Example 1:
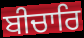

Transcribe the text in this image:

ਬੀਚਾਰਿ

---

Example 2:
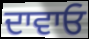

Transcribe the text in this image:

ਦਾਵਾਓ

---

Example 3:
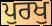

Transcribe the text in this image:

ਪੁਰਖੁ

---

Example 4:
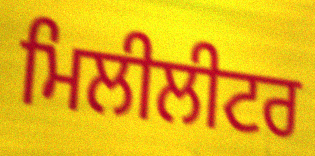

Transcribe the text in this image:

ਮਿਲੀਲੀਟਰ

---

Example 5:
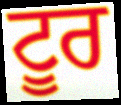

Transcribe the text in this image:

ਟੂਰ